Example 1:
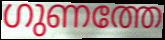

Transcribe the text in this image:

ഗുണത്തേ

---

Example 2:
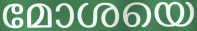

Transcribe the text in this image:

മോശയെ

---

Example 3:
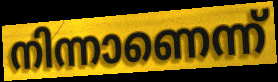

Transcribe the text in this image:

നിന്നാണെന്ന്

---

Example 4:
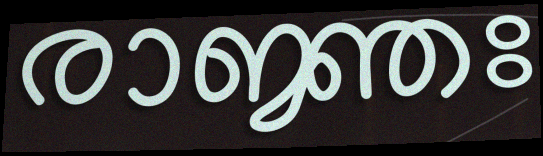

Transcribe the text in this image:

രാജ്ഞഃ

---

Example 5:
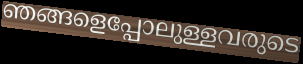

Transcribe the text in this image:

ഞങ്ങളെപ്പോലുള്ളവരുടെ